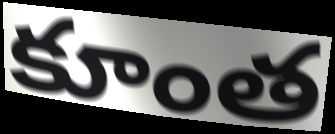
కూంత